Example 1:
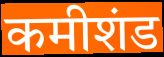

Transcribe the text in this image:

कमीशंड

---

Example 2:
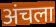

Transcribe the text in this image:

अंचला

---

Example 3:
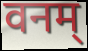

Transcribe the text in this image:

वनम्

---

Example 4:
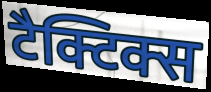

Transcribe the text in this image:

टैक्टिक्स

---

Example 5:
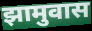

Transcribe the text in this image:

झामुवास